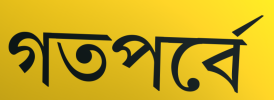
গতপর্বে